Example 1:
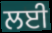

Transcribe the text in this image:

ਲਈ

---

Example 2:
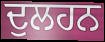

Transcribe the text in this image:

ਦੁਲਹਨ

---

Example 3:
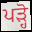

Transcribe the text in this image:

ਪੜ੍ਹੋ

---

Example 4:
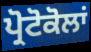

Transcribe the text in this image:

ਪ੍ਰੋਟੋਕੋਲਾਂ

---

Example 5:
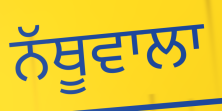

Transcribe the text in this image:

ਨੱਥੂਵਾਲਾ